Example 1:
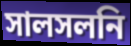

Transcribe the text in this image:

সালসলনি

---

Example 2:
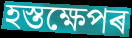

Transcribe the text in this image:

হস্তক্ষেপৰ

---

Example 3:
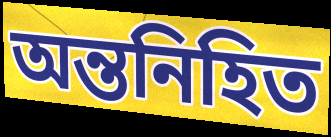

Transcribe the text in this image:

অন্তনিহিত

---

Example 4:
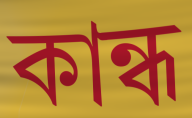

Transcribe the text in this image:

কান্ধ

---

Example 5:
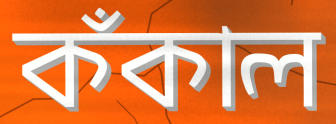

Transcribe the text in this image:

কঁকাল